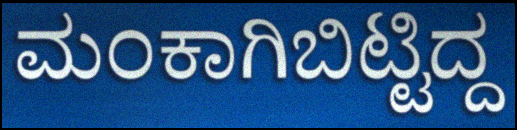
ಮಂಕಾಗಿಬಿಟ್ಟಿದ್ದ